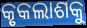
କୃକଲାଶକୁ